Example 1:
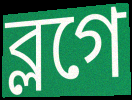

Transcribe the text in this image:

ব্লগে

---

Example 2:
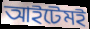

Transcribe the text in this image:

আইটেমই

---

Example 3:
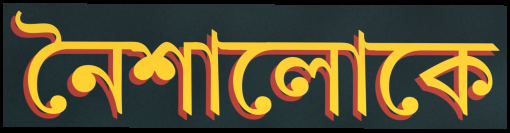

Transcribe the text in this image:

নৈশালোকে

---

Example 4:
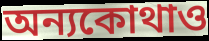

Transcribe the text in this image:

অন্যকোথাও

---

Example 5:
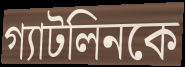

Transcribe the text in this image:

গ্যাটলিনকে